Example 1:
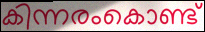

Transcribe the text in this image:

കിന്നരംകൊണ്ട്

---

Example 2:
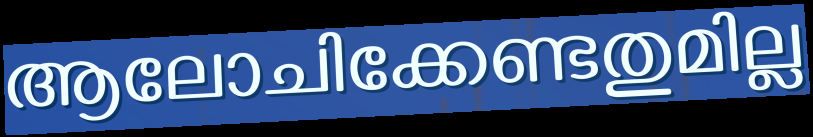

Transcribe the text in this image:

ആലോചിക്കേണ്ടതുമില്ല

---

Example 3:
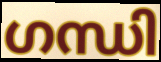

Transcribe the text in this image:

ഗന്ധി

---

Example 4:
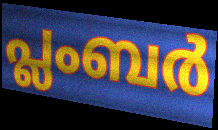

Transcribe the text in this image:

പ്ലംബർ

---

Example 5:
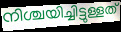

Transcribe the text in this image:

നിശ്ചയിച്ചിട്ടുള്ളത്